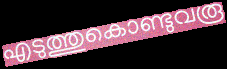
എടുത്തുകൊണ്ടുവരൂ